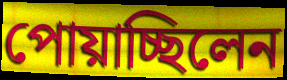
পোয়াচ্ছিলেন